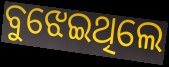
ବୁଝେଇଥିଲେ